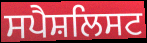
ਸਪੈਸ਼ਲਿਸਟ